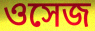
ওসেজ